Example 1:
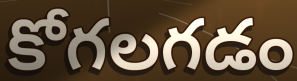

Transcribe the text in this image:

కోగలగడం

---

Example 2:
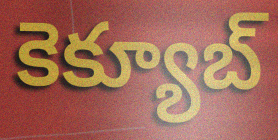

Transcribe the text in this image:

కెక్యూబ్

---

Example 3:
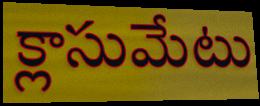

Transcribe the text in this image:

క్లాసుమేటు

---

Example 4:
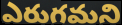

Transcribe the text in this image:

ఎరుగమని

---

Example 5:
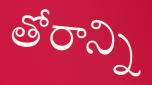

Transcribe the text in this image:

తోరాన్ని